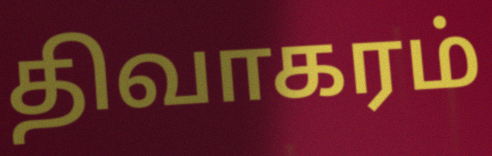
திவாகரம்